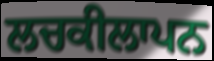
ਲਚਕੀਲਾਪਨ